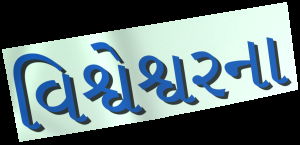
વિશ્વેશ્વરના